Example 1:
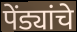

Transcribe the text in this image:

पेंड्यांचे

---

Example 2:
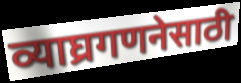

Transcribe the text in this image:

व्याघ्रगणनेसाठी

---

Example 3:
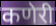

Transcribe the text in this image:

कणेरी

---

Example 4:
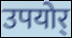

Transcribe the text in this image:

उपयोर्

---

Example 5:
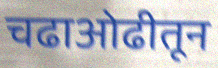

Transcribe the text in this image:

चढाओढीतून